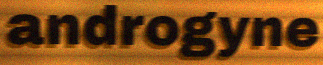
androgyne